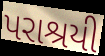
પરાશ્રયી